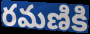
రమణికి